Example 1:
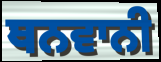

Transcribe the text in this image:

ਥਨਵਾਨੀ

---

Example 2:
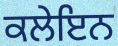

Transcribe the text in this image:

ਕਲੇਇਨ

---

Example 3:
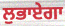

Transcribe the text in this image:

ਲੁਭਾਏਗਾ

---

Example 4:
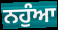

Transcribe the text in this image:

ਨਹੁੰਆ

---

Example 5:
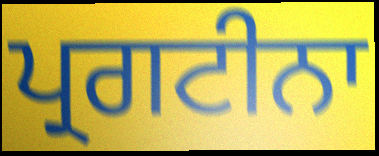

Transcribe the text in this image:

ਪ੍ਰਗਟੀਨਾ